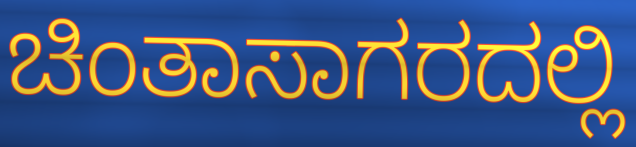
ಚಿಂತಾಸಾಗರದಲ್ಲಿ